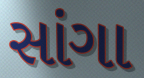
સાંગા